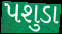
પશુડા